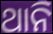
ଥାନି